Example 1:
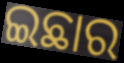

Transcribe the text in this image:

ଇଛାର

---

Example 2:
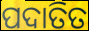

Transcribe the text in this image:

ପଦାତିତ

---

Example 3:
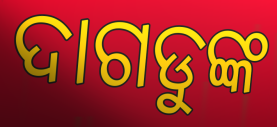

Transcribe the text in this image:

ଦାଗଡୁଙ୍କ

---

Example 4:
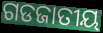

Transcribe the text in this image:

ଗଡଜାତୀୟ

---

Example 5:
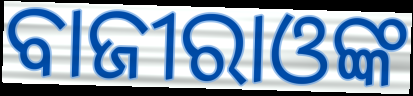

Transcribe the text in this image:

ବାଜୀରାଓଙ୍କ